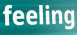
feeling